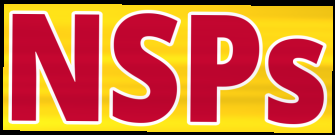
NSPs